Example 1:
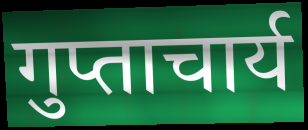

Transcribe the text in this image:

गुप्ताचार्य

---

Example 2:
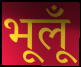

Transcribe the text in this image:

भूलूँ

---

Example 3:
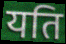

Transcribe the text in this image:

यति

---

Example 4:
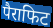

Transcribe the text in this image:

पैराफिट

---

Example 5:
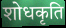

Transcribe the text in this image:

शोधकृति